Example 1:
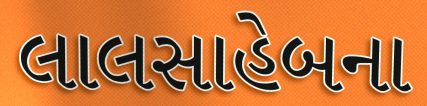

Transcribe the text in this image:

લાલસાહેબના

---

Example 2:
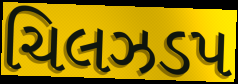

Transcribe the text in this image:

ચિલઝડપ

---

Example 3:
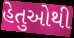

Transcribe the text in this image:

હેતુઓથી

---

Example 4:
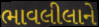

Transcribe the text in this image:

ભાવલીલાને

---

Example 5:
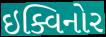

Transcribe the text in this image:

ઇક્વિનોર